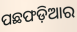
ପଛଫଡ଼ିଆର